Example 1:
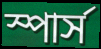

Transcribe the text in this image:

স্পার্স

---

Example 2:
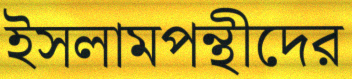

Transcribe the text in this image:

ইসলামপন্থীদের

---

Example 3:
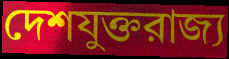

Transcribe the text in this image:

দেশযুক্তরাজ্য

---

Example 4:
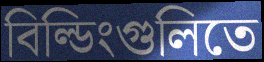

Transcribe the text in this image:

বিল্ডিংগুলিতে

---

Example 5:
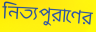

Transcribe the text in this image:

নিত্যপুরাণের